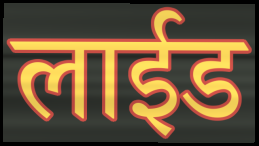
लाईड